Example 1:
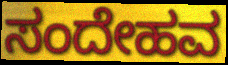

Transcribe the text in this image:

ಸಂದೇಹವ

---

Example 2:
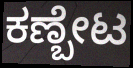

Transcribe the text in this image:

ಕಣ್ಬೇಟ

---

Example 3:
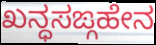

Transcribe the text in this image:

ಖನ್ಧಸಙ್ಗಹೇನ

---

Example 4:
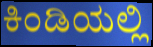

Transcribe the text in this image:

ಕಿಂಡಿಯಲ್ಲಿ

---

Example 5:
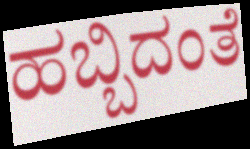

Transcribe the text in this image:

ಹಬ್ಬಿದಂತೆ